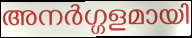
അനർഗ്ഗളമായി